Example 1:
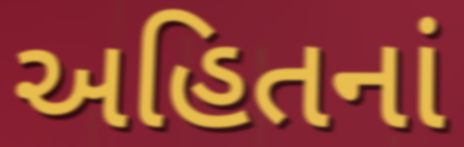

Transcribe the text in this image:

અહિતનાં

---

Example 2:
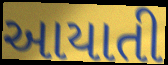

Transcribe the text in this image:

આયાતી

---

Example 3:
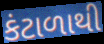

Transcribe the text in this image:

કંટાળાથી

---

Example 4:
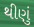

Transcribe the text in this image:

થીણું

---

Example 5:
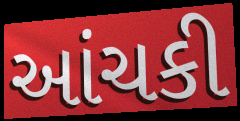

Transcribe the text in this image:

આંચકી